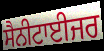
ਸੈਨੀਟਾਈਜਰ